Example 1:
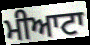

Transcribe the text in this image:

ਮੀਆਟਾ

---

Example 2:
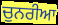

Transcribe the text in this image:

ਚੁਨਰੀਆ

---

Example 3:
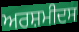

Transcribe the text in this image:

ਅਰਸ਼ਮੀਦਸ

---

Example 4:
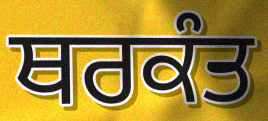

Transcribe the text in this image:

ਥਰਕੰਤ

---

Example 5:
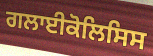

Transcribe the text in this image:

ਗਲਾਈਕੋਲਿਸਿਸ